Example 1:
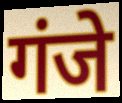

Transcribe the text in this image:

गंजे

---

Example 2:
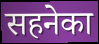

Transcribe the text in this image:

सहनेका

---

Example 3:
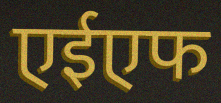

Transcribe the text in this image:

एईएफ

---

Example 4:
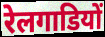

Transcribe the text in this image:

रेलगाडियों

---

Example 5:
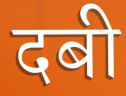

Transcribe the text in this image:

दबी